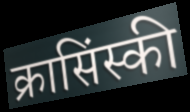
क्रासिंस्की